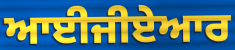
ਆਈਜੀਏਆਰ